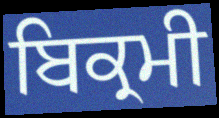
ਬਿਕ੍ਰਮੀ